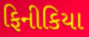
ફિનીકિયા